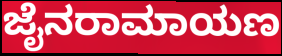
ಜೈನರಾಮಾಯಣ